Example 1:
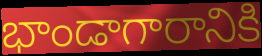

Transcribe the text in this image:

భాండాగారానికి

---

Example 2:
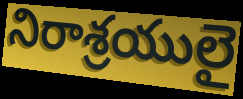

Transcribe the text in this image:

నిరాశ్రయులై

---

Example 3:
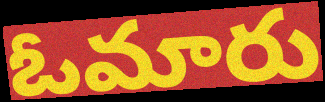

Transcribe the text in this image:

ఓమారు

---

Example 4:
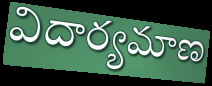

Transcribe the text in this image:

విదార్యమాణ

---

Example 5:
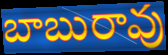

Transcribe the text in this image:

బాబురావు